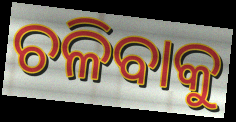
ଚଳିବାକୁ